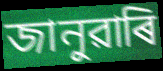
জানুৱাৰি